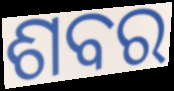
ଶବର